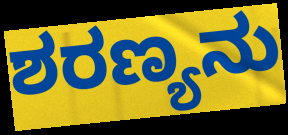
ಶರಣ್ಯನು